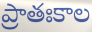
ప్రాతఃకాల